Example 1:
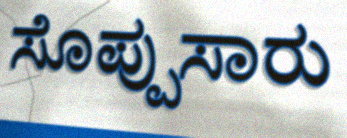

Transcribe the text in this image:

ಸೊಪ್ಪುಸಾರು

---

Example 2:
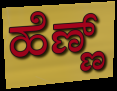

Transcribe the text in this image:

ಹೆಣ್ಣ್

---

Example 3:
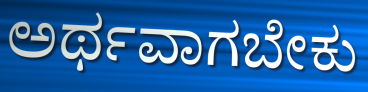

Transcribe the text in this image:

ಅರ್ಥವಾಗಬೇಕು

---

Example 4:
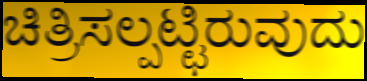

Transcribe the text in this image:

ಚಿತ್ರಿಸಲ್ಪಟ್ಟಿರುವುದು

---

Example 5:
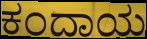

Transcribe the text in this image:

ಕಂದಾಯ